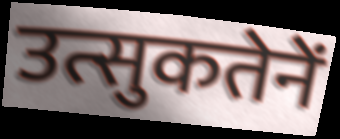
उत्सुकतेनें